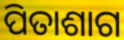
ପିତାଶାଗ